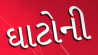
ઘાટોની